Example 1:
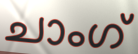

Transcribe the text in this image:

ചാംഗ്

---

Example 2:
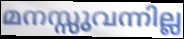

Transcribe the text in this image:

മനസ്സുവന്നില്ല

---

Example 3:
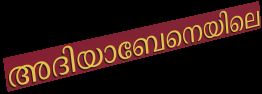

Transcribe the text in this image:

അദിയാബേനെയിലെ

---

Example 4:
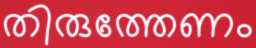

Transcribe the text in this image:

തിരുത്തേണം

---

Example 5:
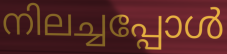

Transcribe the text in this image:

നിലച്ചപ്പോൾ